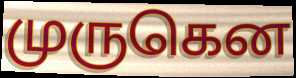
முருகென